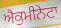
ਐਕੁਮੀਨੇਟਾ